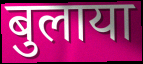
बुलाया